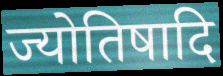
ज्योतिषादि